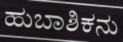
ಹುಬಾಶಿಕನು